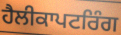
ਹੈਲੀਕਾਪਟਰਿੰਗ